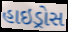
હાઇડ્રોસ